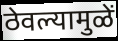
ठेवल्यामुळें